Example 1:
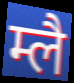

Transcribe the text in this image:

म्लै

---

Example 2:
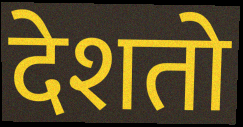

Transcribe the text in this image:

देशतो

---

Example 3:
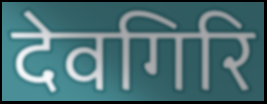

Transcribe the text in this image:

देवगिरि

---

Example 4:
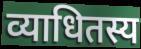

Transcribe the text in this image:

व्याधितस्य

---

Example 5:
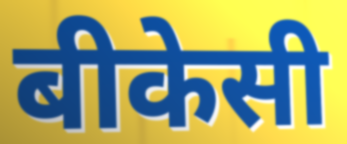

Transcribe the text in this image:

बीकेसी